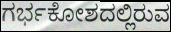
ಗರ್ಭಕೋಶದಲ್ಲಿರುವ